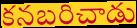
కనబరిచాడు